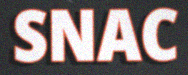
SNAC